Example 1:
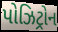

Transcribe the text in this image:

પોઝિટ્રોન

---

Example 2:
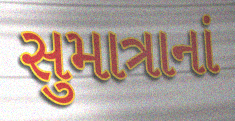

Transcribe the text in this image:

સુમાત્રાનાં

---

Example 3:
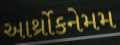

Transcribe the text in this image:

આર્થ્રોકનેમમ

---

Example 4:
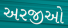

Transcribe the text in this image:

અરજીઓ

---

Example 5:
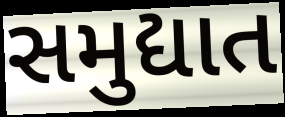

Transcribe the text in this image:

સમુદ્યાત